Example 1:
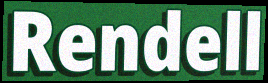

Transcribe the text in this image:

Rendell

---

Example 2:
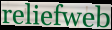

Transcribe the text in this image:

reliefweb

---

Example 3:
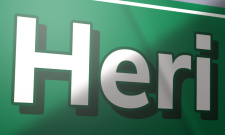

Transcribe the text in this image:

Heri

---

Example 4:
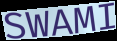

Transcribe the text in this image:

SWAMI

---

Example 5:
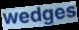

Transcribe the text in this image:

wedges